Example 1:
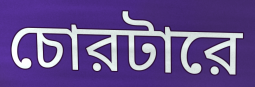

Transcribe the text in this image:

চোরটারে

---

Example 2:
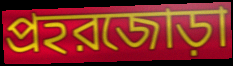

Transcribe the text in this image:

প্রহরজোড়া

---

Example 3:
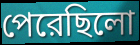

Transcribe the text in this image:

পেরেছিলো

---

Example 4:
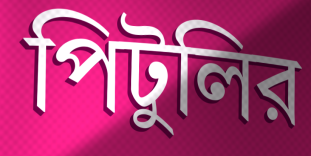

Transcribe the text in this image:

পিটুলির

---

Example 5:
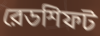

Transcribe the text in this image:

রেডশিফট